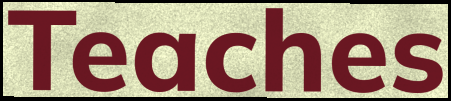
Teaches